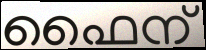
ഫൈന്